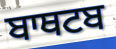
ਬਾਥਟਬ